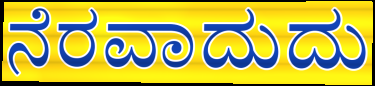
ನೆರವಾದುದು